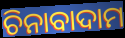
ଚିନାବାଦାମ